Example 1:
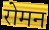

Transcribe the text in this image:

रोमन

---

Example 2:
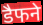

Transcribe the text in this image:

डैफने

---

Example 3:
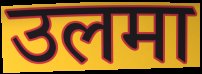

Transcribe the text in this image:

उलमा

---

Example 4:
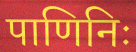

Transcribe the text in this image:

पाणिनिः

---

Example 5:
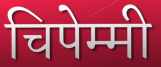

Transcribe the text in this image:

चिपेम्मी